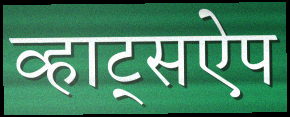
व्हाट्सऐप